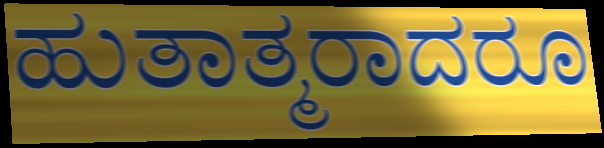
ಹುತಾತ್ಮರಾದರೂ